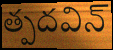
త్పదవిన్